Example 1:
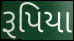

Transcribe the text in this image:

રૂપિયા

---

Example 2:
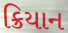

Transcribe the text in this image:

ક્રિયાન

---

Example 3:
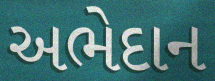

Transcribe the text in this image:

અભેદાન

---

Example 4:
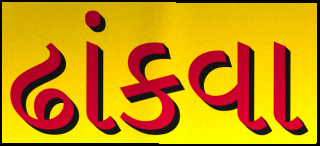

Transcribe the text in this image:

ઢાંકવા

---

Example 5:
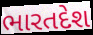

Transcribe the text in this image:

ભારતદેશ